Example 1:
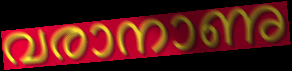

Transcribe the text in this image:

വരാനാണു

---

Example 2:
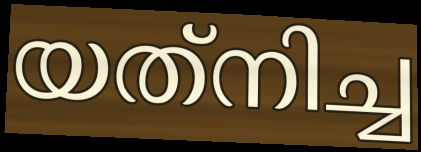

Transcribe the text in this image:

യത്‌നിച്ച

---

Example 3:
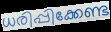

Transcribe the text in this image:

ധരിപ്പിക്കേണ്ട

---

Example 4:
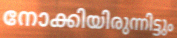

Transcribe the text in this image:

നോക്കിയിരുന്നിട്ടും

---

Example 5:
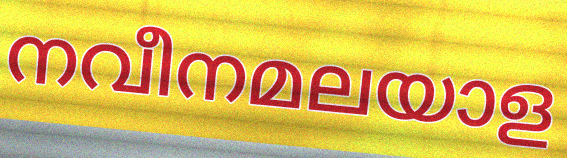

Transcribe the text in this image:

നവീനമലയാള